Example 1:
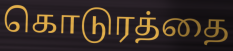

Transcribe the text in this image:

கொடுரத்தை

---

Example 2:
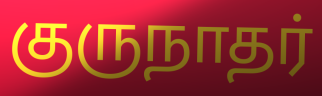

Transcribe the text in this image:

குருநாதர்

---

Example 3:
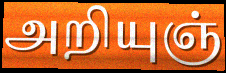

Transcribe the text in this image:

அறியுஞ்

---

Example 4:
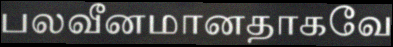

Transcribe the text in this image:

பலவீனமானதாகவே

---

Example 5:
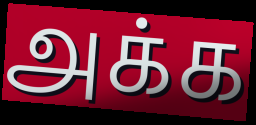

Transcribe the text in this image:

அக்க